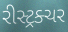
રીસ્ટ્રક્ચર